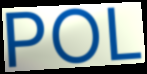
POL